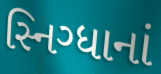
સ્નિગ્ધાનાં